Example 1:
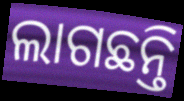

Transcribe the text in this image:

ଲାଗଛନ୍ତି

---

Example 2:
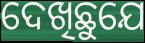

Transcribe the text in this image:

ଦେଖିଛୁଯେ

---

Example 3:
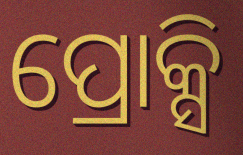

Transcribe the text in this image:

ପ୍ରୋକ୍ସି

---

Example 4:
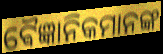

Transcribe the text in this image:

ଵୈଜ୍ଞାନିକମାନଙ୍କ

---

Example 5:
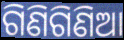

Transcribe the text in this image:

ଗିଣିଗିଣିଆ